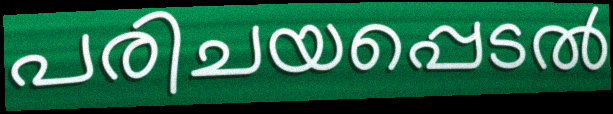
പരിചയപ്പെടൽ